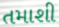
તમાશી